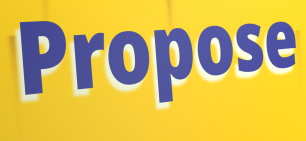
Propose